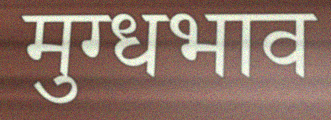
मुग्धभाव